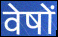
वेषों